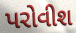
પરોવીશ